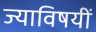
ज्याविषयीं